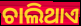
ଚାଲିଥାଏ